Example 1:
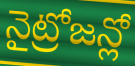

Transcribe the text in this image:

నైట్రోజన్లో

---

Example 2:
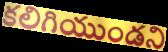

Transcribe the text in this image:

కలిగియుండని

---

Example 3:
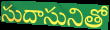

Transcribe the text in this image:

సుదాసునితో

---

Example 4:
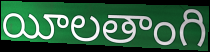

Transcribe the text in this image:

యీలతాంగి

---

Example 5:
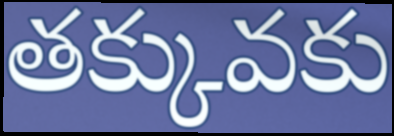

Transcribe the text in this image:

తక్కువకు